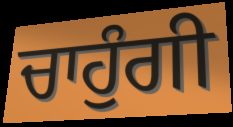
ਚਾਹੁੰਗੀ